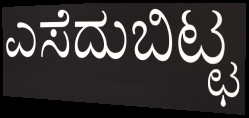
ಎಸೆದುಬಿಟ್ಟ